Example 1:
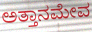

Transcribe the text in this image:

ಅತ್ತಾನಮೇವ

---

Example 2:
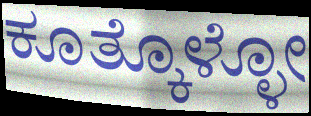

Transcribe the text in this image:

ಕೂತ್ಕೊಳ್ಳೋ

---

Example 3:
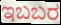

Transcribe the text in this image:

ಇಬಬರ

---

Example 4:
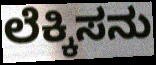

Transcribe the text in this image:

ಲೆಕ್ಕಿಸನು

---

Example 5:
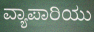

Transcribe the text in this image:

ವ್ಯಾಪಾರಿಯು